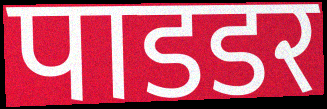
पाडडर